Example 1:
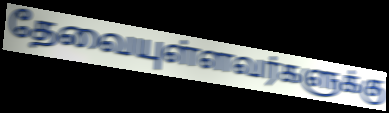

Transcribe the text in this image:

தேவையுள்ளவர்களுக்கு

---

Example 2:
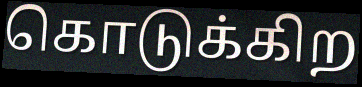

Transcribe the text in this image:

கொடுக்கிற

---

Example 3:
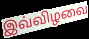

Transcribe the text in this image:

இவ்விழவை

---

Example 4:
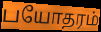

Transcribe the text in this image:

பயோதரம்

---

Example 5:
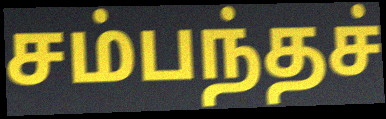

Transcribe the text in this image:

சம்பந்தச்